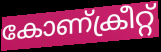
കോണ്ക്രീറ്റ്